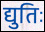
द्युतिः